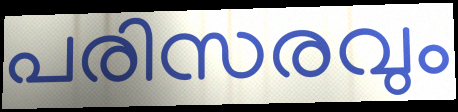
പരിസരവും